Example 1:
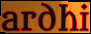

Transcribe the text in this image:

ardhi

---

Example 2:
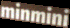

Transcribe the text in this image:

minmini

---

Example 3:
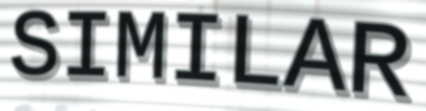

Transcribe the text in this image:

SIMILAR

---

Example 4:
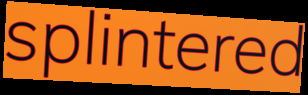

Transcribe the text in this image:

splintered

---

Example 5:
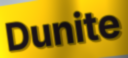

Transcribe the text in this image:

Dunite